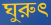
ঘুরুৎ